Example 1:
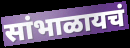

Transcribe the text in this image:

सांभाळायचं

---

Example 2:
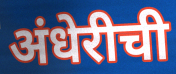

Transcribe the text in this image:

अंधेरीची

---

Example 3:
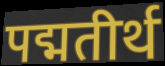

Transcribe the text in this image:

पद्मतीर्थ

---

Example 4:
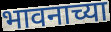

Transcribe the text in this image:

भावनाच्या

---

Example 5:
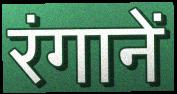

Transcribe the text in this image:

रंगानें